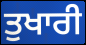
ਤੁਖਾਰੀ